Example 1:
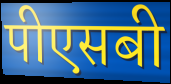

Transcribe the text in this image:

पीएसबी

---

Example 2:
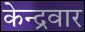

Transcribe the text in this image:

केन्‍द्रवार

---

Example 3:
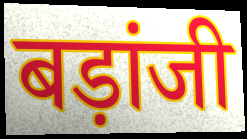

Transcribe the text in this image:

बड़ांजी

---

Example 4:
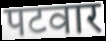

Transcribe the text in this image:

पटवार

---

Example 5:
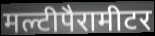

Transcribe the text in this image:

मल्टीपैरामीटर